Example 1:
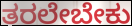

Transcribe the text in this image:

ತರಲೇಬೇಕು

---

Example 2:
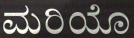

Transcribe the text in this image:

ಮರಿಯೊ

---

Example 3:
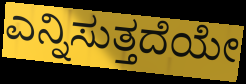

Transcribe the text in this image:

ಎನ್ನಿಸುತ್ತದೆಯೇ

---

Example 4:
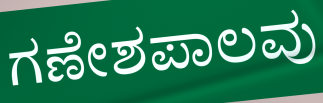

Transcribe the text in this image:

ಗಣೇಶಪಾಲವು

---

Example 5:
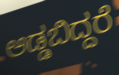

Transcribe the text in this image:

ಅಡ್ಡಬಿದ್ದರೆ